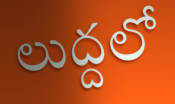
లుద్దలో